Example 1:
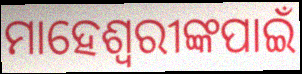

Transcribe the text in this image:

ମାହେଶ୍ୱରୀଙ୍କପାଇଁ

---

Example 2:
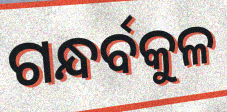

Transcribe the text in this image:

ଗନ୍ଧର୍ବକୁଳ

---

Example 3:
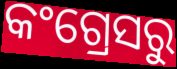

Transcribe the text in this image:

କଂଗ୍ରେସରୁ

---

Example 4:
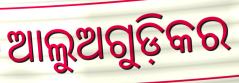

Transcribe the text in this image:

ଆଲୁଅଗୁଡ଼ିକର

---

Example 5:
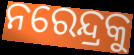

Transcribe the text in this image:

ନରେନ୍ଦ୍ରକୁ